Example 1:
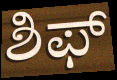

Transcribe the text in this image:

ಶಿಫ್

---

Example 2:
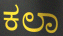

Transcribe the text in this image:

ಕಲಾ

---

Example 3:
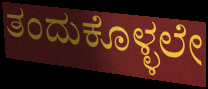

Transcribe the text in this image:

ತಂದುಕೊಳ್ಳಲೇ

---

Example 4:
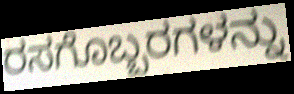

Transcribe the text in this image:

ರಸಗೊಬ್ಬರಗಳನ್ನು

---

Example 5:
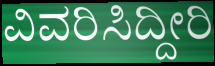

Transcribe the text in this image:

ವಿವರಿಸಿದ್ದೀರಿ